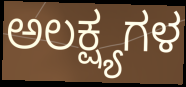
ಅಲಕ್ಷ್ಯಗಳ